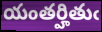
యంతర్హితుఁ